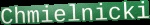
Chmielnicki